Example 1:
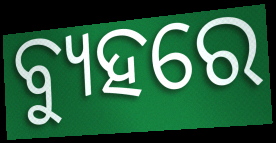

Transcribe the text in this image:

ବ୍ୟୁହରେ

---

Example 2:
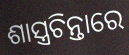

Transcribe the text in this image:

ଶାସ୍ତ୍ରଚିନ୍ତାରେ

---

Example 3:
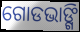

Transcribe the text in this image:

ଗୋଡଭାଙ୍ଗି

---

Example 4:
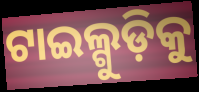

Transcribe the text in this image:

ଟାଇଲ୍ଗୁଡ଼ିକୁ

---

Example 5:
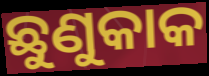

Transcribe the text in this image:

ଛୁଣୁକାକ